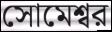
সোমেশ্বর